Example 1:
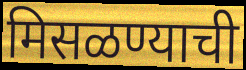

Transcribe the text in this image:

मिसळण्याची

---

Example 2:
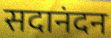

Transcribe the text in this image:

सदानंदन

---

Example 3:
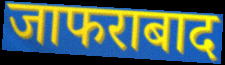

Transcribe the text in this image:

जाफराबाद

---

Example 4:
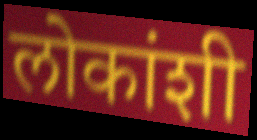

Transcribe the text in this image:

लोकांशी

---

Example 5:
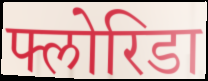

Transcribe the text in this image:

फ्लोरिडा